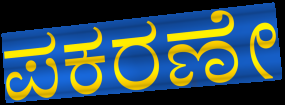
ಪಕರಣೇ